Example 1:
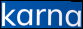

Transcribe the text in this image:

karna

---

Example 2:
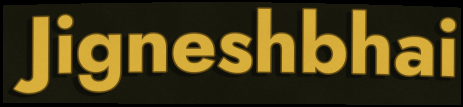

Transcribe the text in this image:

Jigneshbhai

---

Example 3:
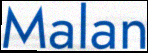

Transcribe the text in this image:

Malan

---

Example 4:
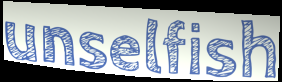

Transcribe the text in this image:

unselfish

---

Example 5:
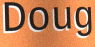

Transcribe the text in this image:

Doug